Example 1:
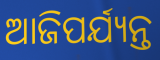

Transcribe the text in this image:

ଆଜିପର୍ଯ୍ୟନ୍ତ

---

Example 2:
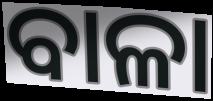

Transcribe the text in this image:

ବାଳା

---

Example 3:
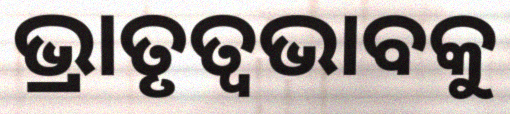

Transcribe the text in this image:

ଭ୍ରାତୃତ୍ୱଭାବକୁ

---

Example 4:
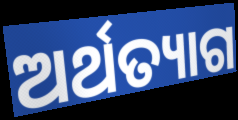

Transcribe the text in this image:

ଅର୍ଥତ୍ୟାଗ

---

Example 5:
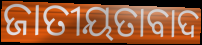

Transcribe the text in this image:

ଜାତୀୟତାବାଦ